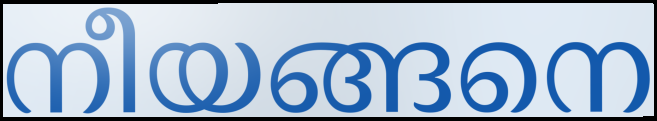
നീയങ്ങനെ